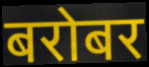
बरोबर